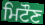
ਮਿਟੌਣ